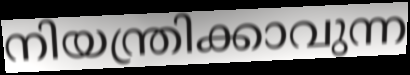
നിയന്ത്രിക്കാവുന്ന